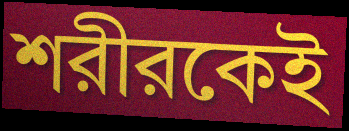
শরীরকেই